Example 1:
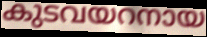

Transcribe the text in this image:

കുടവയറനായ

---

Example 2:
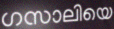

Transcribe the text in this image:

ഗസാലിയെ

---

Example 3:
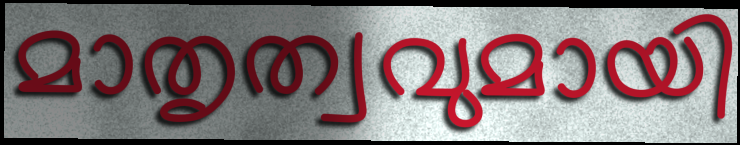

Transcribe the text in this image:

മാതൃത്വവുമായി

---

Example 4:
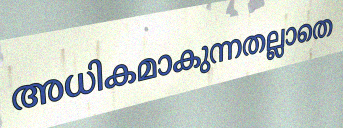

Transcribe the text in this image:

അധികമാകുന്നതല്ലാതെ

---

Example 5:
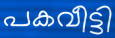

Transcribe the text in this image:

പകവീട്ടി